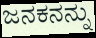
ಜನಕನನ್ನು